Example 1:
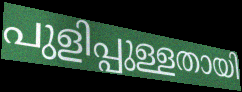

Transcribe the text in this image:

പുളിപ്പുള്ളതായി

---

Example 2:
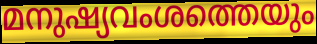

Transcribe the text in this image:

മനുഷ്യവംശത്തെയും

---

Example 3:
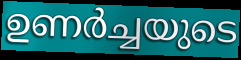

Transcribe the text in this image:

ഉണർച്ചയുടെ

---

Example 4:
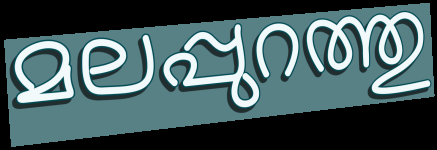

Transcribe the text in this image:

മലപ്പുറത്തു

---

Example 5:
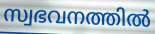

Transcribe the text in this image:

സ്വഭവനത്തിൽ